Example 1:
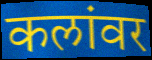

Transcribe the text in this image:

कलांवर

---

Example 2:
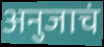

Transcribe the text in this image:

अनुजाचं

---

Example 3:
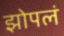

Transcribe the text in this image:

झोपलं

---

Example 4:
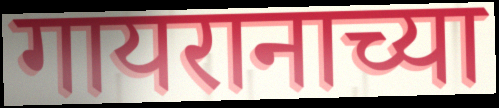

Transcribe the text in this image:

गायरानाच्या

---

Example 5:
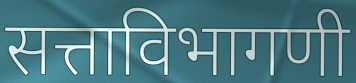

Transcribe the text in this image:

सत्ताविभागणी